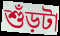
শুঁড়টা